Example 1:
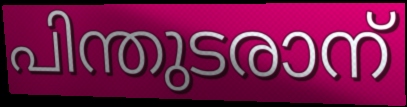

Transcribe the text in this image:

പിന്തുടരാന്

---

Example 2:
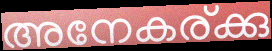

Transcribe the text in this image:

അനേകര്ക്കു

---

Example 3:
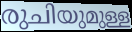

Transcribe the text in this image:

രുചിയുമുള്ള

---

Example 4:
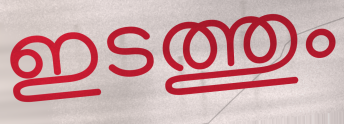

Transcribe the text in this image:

ഇടത്തും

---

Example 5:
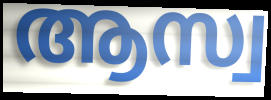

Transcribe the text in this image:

ആസ്വ